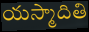
యస్మాదితి